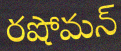
రషోమన్